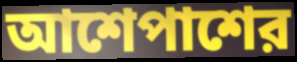
আশেপাশের